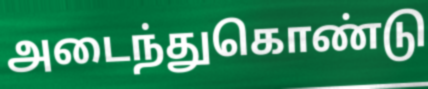
அடைந்துகொண்டு